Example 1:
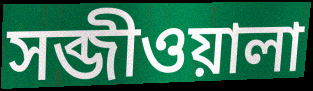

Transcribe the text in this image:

সব্জীওয়ালা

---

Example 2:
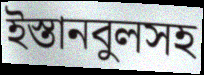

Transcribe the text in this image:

ইস্তানবুলসহ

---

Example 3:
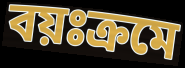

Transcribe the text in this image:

বয়ঃক্রমে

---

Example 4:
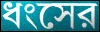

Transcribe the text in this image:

ধংসের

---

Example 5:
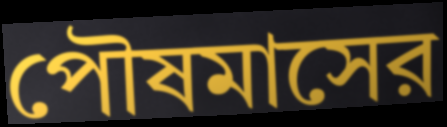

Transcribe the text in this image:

পৌষমাসের